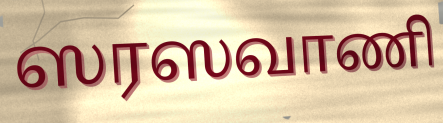
ஸரஸவாணி